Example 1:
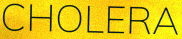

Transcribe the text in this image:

CHOLERA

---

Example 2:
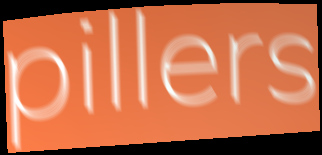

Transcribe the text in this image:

pillers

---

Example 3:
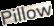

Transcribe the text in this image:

Pillow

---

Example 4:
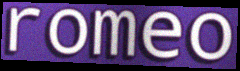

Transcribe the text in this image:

romeo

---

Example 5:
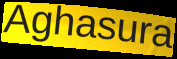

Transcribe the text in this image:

Aghasura